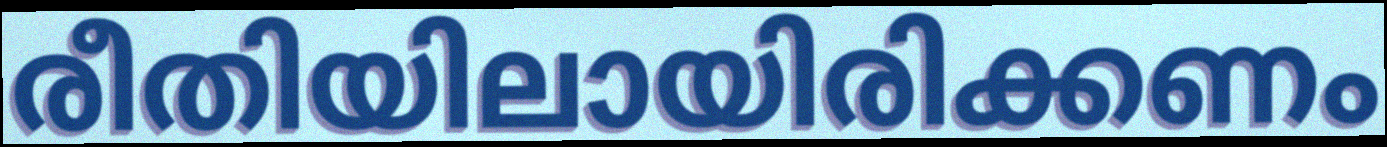
രീതിയിലായിരിക്കണം